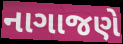
નાગાજણે